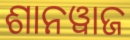
ଶାନୱାଜ